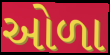
ઓળા